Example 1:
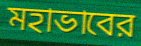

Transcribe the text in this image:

মহাভাবের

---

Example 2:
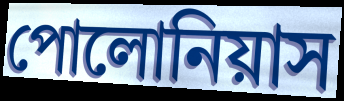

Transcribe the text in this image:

পোলোনিয়াস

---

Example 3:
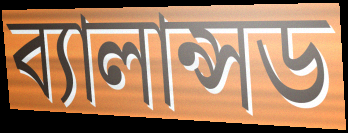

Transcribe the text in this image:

ব্যালান্সড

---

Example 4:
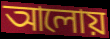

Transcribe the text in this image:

আলোয়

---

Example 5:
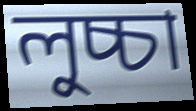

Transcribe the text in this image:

লুচ্চা